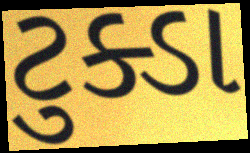
ટુક્ડા